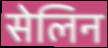
सेलिन